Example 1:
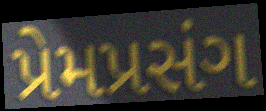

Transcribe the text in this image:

પ્રેમપ્રસંગ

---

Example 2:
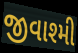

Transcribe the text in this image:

જીવાશ્મી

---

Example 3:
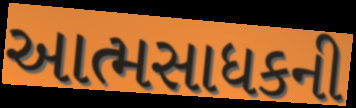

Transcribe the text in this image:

આત્મસાધકની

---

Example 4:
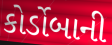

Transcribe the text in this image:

કોર્ડોબાની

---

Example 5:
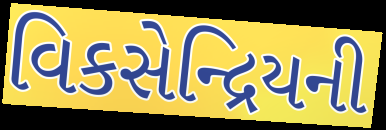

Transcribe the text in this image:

વિકસેન્દ્રિયની